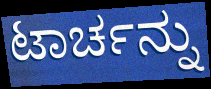
ಟಾರ್ಚನ್ನು